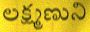
లక్ష్మణుని